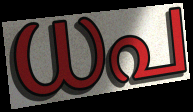
ധപ